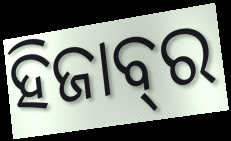
ହିଜାବ୍‌ର